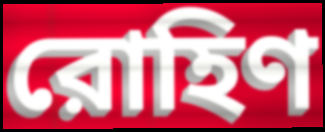
রোহিণ